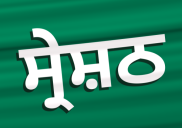
ਸ੍ਰੇਸ਼ਠ